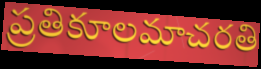
ప్రతికూలమాచరతి